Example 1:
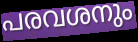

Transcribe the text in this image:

പരവശനും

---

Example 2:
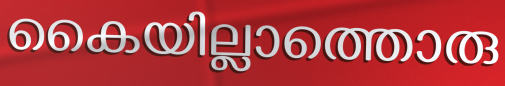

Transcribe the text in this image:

കൈയില്ലാത്തൊരു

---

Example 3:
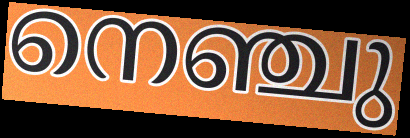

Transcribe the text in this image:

നെഞ്ചു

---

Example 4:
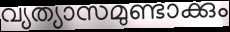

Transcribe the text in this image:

വ്യത്യാസമുണ്ടാക്കും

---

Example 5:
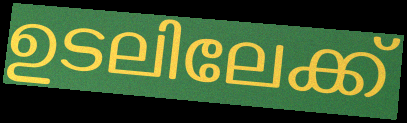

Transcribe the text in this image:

ഉടലിലേക്ക്